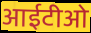
आईटीओ